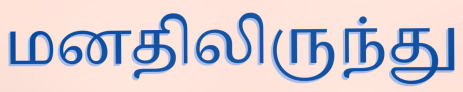
மனதிலிருந்து